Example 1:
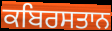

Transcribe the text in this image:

ਕਬਿਰਸਤਾਨ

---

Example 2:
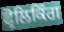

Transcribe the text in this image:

ਫ੍ਰੋਲਿਕਿੰਗ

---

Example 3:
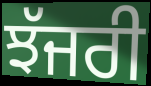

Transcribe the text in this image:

ਝੱਜਰੀ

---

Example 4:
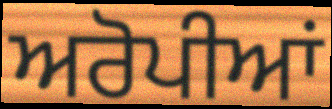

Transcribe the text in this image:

ਅਰੋਪੀਆਂ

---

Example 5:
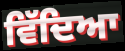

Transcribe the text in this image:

ਵਿੱਦਿਆ